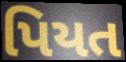
પિયત